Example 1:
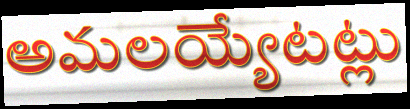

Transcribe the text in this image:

అమలయ్యేటట్లు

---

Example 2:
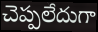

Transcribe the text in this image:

చెప్పలేదుగా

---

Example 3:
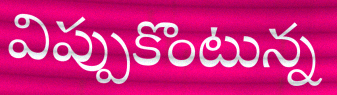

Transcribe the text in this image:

విప్పుకొంటున్న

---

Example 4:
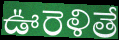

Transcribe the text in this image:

ఊరెళితే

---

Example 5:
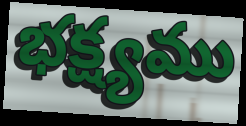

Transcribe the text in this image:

భక్ష్యము